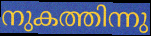
നുകത്തിന്നു